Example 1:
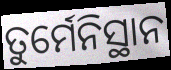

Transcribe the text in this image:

ତୁର୍ମେନିସ୍ଥାନ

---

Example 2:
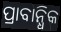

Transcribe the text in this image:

ପ୍ରାବାନ୍ଧିକ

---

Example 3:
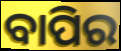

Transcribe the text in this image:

ବାପିର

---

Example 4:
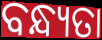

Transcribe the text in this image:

ବନ୍ଧ୍ୟତା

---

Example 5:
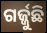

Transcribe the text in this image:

ଗର୍ଜ୍ଜୁଛି